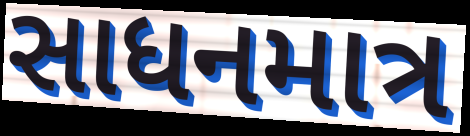
સાધનમાત્ર